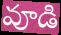
వూడి